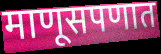
माणूसपणात